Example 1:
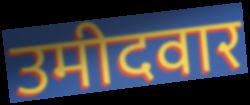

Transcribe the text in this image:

उमीदवार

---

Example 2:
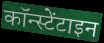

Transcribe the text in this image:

कॉन्स्टेंटाइन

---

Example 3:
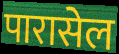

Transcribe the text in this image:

पारासेल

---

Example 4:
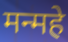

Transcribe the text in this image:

मन्महे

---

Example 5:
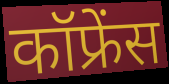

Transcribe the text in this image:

कॉफ्रेंस